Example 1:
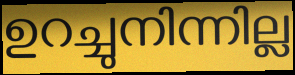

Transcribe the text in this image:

ഉറച്ചുനിന്നില്ല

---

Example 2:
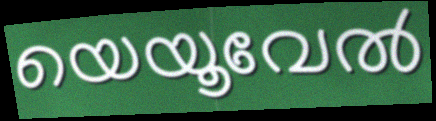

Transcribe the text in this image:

യെയൂവേൽ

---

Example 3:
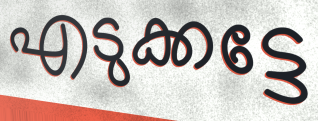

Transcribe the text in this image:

എടുക്കട്ടേ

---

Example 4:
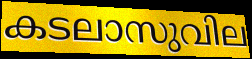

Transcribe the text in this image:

കടലാസുവില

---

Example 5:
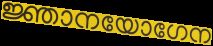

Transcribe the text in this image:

ജ്ഞാനയോഗേന